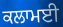
ਕਲਾਮਈ